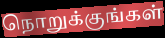
நொறுக்குங்கள்